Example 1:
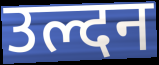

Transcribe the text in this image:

उल्दन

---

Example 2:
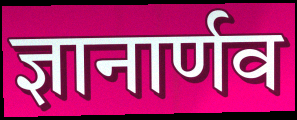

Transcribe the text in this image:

ज्ञानार्णव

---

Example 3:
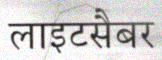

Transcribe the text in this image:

लाइटसैबर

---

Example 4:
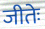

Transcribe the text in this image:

जीतेः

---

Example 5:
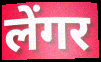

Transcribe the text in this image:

लेंगर